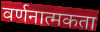
वर्णनात्मकता